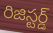
రిజిస్టర్డ్